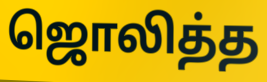
ஜொலித்த